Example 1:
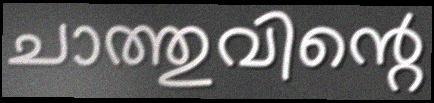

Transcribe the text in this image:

ചാത്തുവിന്റെ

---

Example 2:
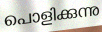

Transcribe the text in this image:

പൊളിക്കുന്നു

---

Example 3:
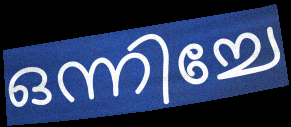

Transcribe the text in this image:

ഒന്നിച്ചേ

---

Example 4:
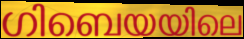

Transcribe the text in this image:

ഗിബെയയിലെ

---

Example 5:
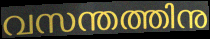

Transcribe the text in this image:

വസന്തത്തിനു